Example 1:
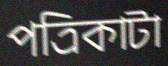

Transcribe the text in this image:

পত্রিকাটা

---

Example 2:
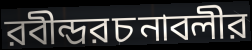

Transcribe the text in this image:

রবীন্দ্ররচনাবলীর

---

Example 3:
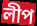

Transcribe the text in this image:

লীপ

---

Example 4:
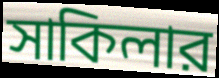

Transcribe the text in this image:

সাকিলার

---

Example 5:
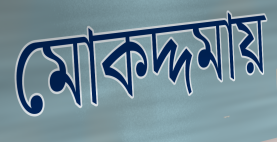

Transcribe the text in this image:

মোকদ্দমায়